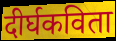
दीर्घकविता